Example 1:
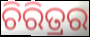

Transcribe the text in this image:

ଚିରିତ୍ରର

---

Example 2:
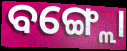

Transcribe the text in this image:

ବଙ୍ଗ୍ଲୋ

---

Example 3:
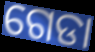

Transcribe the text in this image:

ଗେଡା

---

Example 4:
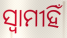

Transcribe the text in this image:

ସ୍ଵାମୀହିଁ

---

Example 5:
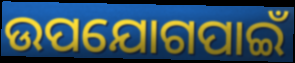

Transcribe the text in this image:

ଉପଯୋଗପାଇଁ